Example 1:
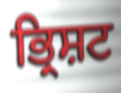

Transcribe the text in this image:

ਭ੍ਰਿਸ਼ਟ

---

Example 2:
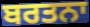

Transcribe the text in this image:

ਬਰਤਨਾ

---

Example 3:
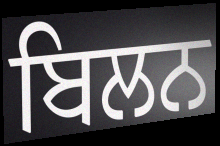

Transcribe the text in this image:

ਬਿਲਨ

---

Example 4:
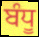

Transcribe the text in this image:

ਬੰਧੂ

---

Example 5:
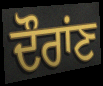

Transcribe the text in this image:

ਦੌਰਾਂਣ